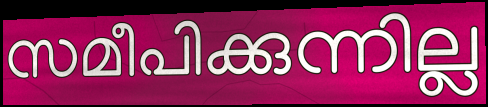
സമീപിക്കുന്നില്ല